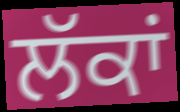
ਲੱਕਾਂ